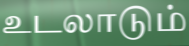
உடலாடும்